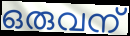
ഒരുവന്